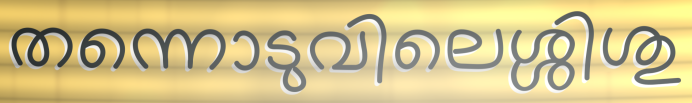
തന്നൊടുവിലെശ്ശിശു